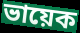
ভায়েক